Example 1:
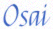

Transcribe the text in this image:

Osai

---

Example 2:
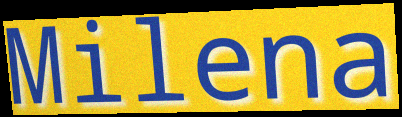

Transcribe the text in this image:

Milena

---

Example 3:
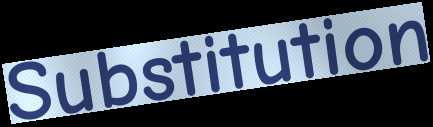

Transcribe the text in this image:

Substitution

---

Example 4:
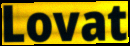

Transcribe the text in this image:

Lovat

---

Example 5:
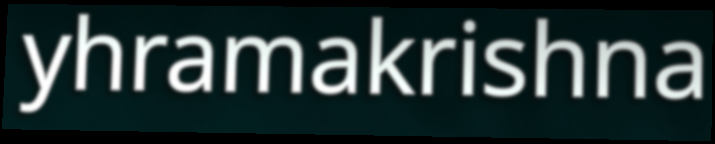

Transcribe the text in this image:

yhramakrishna